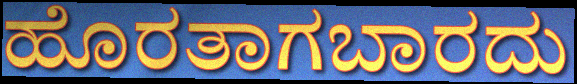
ಹೊರತಾಗಬಾರದು